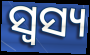
ସ୍ଵସ୍ୟ